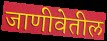
जाणीवेतील